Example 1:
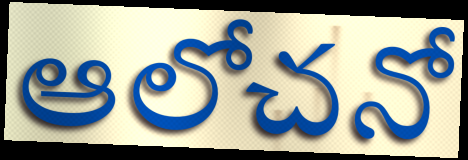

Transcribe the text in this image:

ఆలోచనో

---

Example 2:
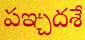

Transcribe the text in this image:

పఞ్చదశే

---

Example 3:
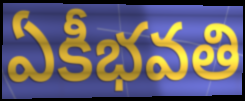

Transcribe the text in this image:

ఏకీభవతి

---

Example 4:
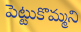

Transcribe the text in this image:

పెట్టుకొమ్మని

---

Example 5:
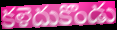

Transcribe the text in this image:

కళెదుకొండు